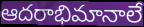
ఆదరాభిమానాలే